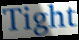
Tight